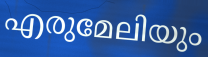
എരുമേലിയും